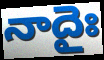
నాదైః